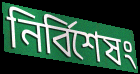
নির্বিশেষং